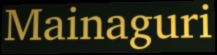
Mainaguri